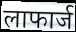
लाफार्ज